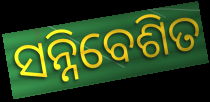
ସନ୍ନିବେଶିତ